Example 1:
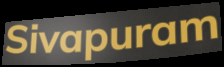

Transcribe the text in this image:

Sivapuram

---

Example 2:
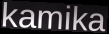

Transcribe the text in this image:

kamika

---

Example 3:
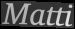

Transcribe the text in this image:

Matti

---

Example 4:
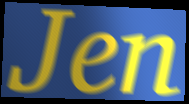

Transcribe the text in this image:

Jen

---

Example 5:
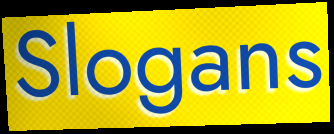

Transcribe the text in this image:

Slogans